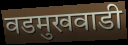
वडमुखवाडी